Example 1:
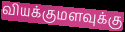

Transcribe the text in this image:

வியக்குமளவுக்கு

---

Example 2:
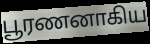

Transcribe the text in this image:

பூரணனாகிய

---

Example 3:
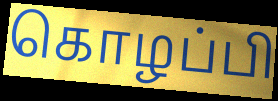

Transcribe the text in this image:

கொழப்பி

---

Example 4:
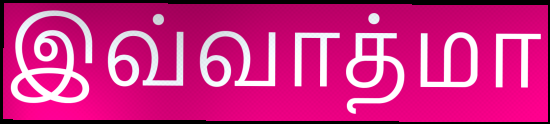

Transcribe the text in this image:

இவ்வாத்மா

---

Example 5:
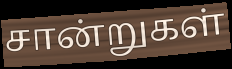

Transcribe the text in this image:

சான்றுகள்